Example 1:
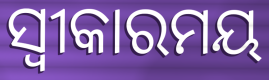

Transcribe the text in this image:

ସ୍ଵୀକାରମୟ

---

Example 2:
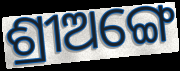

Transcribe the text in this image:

ଶ୍ରୀଅଙ୍ଗେ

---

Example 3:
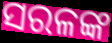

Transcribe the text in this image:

ସରଳଙ୍କ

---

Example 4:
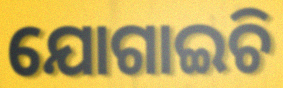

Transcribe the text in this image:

ଯୋଗାଇଚି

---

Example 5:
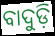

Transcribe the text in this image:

ବାଦୁଡ଼ି